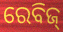
ରେବିଜ୍